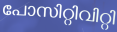
പോസിറ്റിവിറ്റി